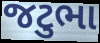
જટુભા